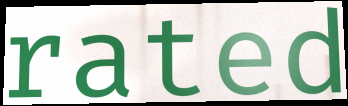
rated